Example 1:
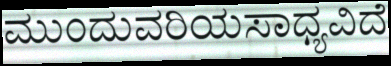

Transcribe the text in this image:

ಮುಂದುವರಿಯಸಾಧ್ಯವಿದೆ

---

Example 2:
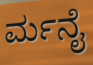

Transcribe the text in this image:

ರ್ಮನೈ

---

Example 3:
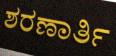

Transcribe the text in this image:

ಶರಣಾರ್ತಿ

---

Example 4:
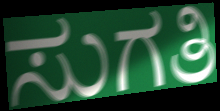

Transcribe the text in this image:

ಸುಗತಿ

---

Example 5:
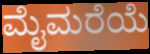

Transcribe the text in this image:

ಮೈಮರೆಯೆ